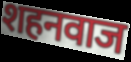
शहनवाज